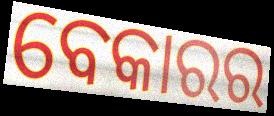
ବେକାରର